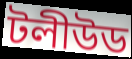
টলীউড